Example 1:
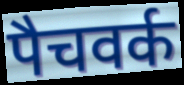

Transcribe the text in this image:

पैचवर्क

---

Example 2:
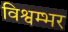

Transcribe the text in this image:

विश्वम्भर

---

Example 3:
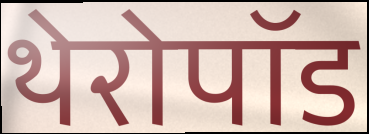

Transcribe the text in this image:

थेरोपॉड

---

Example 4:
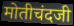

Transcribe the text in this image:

मोतीचंदजी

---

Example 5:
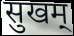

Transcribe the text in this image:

सुखम्